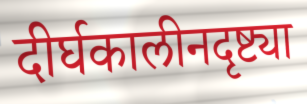
दीर्घकालीनदृष्ट्या